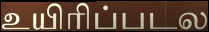
உயிரிப்படல